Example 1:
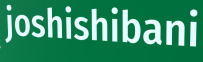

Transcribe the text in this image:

joshishibani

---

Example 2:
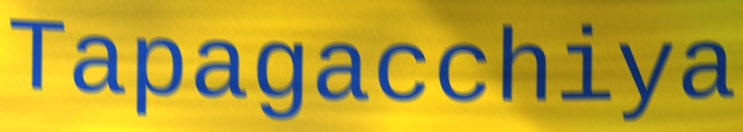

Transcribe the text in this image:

Tapagacchiya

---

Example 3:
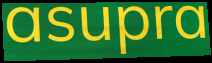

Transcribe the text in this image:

asupra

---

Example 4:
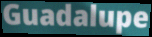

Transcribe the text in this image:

Guadalupe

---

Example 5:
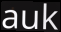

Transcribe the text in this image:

auk